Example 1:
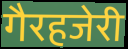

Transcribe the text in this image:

गैरहजेरी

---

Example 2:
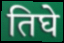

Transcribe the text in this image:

तिघे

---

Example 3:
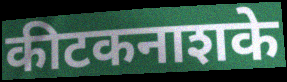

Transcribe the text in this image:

कीटकनाशके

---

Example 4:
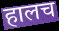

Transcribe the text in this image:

हालच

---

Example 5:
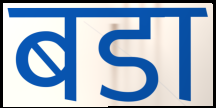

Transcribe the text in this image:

बडा